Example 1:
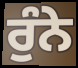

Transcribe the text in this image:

ਰੁੰਨੇ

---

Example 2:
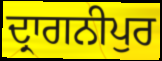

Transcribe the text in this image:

ਦ੍ਰਾਗਨੀਪੁਰ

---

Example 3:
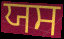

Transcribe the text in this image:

ਯਸ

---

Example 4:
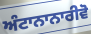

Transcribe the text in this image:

ਅੰਟਾਨਾਨਾਰੀਵੋ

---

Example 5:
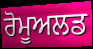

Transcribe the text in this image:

ਰੋਮੂਅਲਡ